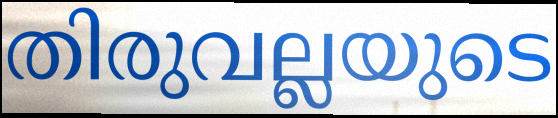
തിരുവല്ലയുടെ